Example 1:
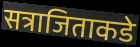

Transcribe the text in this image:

सत्राजिताकडे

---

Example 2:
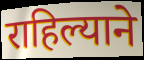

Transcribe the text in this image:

राहिल्याने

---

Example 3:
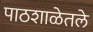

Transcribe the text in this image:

पाठशाळेतले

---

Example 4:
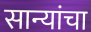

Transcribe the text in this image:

सान्यांचा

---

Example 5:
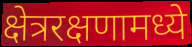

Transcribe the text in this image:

क्षेत्ररक्षणामध्ये